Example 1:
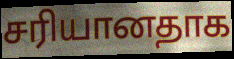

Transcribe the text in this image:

சரியானதாக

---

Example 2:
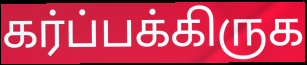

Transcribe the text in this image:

கர்ப்பக்கிருக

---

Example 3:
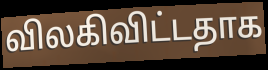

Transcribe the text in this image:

விலகிவிட்டதாக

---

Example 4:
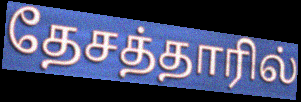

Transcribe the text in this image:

தேசத்தாரில்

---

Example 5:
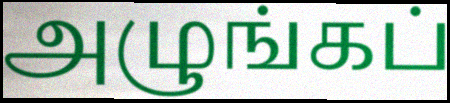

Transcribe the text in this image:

அழுங்கப்